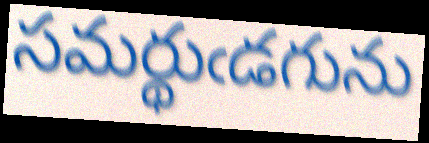
సమర్థుఁడగును